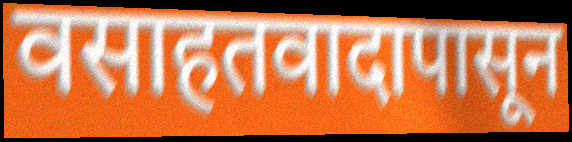
वसाहतवादापासून